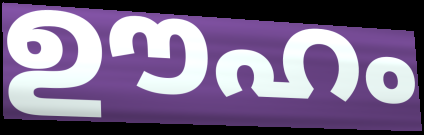
ഊഹം